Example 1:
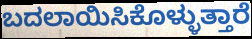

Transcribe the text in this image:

ಬದಲಾಯಿಸಿಕೊಳ್ಳುತ್ತಾರೆ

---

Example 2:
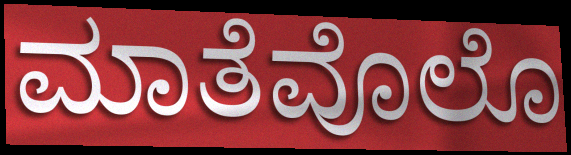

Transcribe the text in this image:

ಮಾತೆವೊಲೊ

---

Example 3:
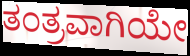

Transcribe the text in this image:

ತಂತ್ರವಾಗಿಯೇ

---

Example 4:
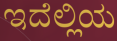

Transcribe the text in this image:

ಇದೆಲ್ಲಿಯ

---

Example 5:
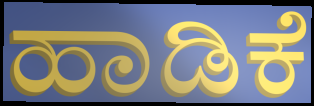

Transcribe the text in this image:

ಹಾಡಿಕೆ